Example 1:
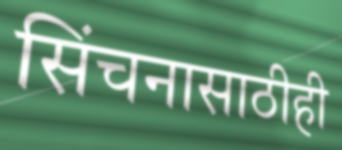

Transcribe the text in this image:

सिंचनासाठीही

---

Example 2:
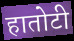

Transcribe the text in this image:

हातोटी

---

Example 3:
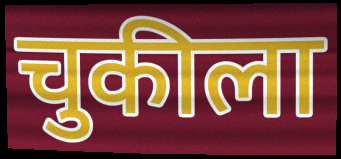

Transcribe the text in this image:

चुकीला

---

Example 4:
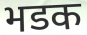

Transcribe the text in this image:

भडक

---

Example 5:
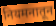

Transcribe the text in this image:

नियमनातून